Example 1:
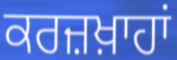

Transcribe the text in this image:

ਕਰਜ਼ਖ਼ਾਹਾਂ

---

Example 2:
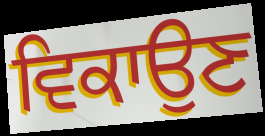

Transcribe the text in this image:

ਵਿਕਾਉਣ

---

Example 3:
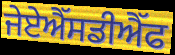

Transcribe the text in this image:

ਜੇਏਐੱਸਡੀਐੱਫ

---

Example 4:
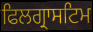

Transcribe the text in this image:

ਫਿਲਗ੍ਰਾਸਟਿਮ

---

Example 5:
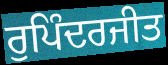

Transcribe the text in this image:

ਰੁਪਿੰਦਰਜੀਤ